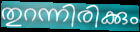
തുറന്നിരിക്കും